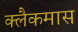
क्लैकमास